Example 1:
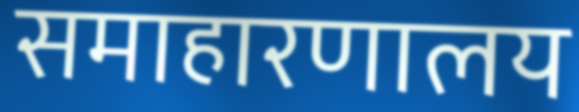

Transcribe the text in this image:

समाहारणालय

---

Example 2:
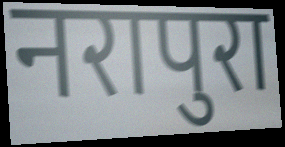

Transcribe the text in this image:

नरापुरा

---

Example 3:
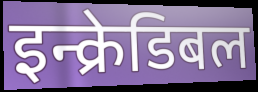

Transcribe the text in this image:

इन्क्रेडिबल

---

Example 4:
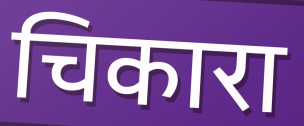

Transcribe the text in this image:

चिकारा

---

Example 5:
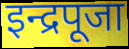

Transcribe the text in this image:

इन्द्रपूजा